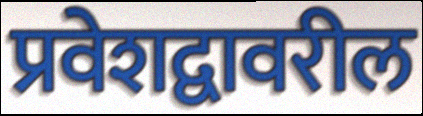
प्रवेशद्वावरील